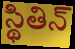
స్థితిన్